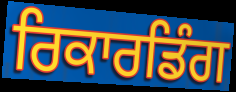
ਰਿਕਾਰਡਿੰਗ